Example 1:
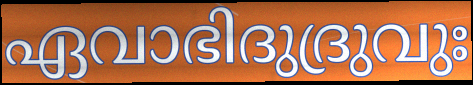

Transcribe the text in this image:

ഏവാഭിദുദ്രുവുഃ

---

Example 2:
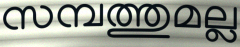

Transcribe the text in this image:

സമ്പത്തുമല്ല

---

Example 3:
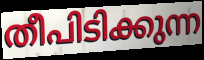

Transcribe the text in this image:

തീപിടിക്കുന്ന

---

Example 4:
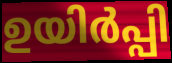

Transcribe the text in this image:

ഉയിർപ്പി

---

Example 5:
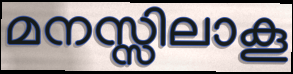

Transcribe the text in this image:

മനസ്സിലാകൂ